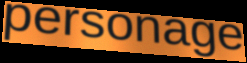
personage